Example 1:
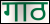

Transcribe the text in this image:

गाठ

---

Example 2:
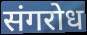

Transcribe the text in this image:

संगरोध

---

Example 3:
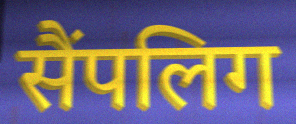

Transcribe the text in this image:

सैंपलिग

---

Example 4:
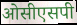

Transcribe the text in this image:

ओसीएसपी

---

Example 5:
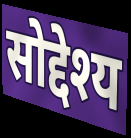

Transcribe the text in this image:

सोद्देश्य